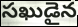
సఖుడైన